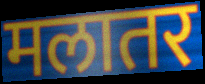
मलातर